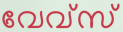
വേവ്സ്